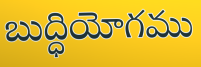
బుద్ధియోగము